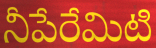
నీపేరేమిటి